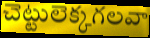
చెట్టులెక్కగలవా